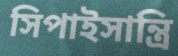
সিপাইসান্ত্রি